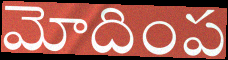
మోదింప